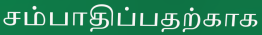
சம்பாதிப்பதற்காக